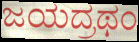
ಜಯದ್ರಥಂ